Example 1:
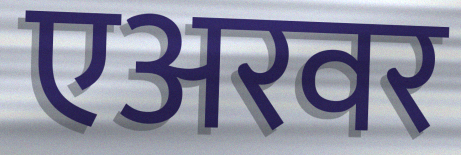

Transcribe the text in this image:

एअरवर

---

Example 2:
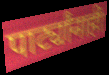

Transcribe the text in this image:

पार्ट्यांनाही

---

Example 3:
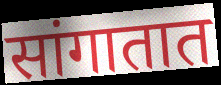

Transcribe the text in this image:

सांगातात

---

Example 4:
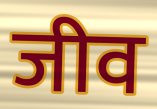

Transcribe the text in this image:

जीव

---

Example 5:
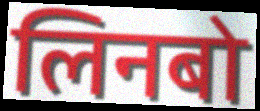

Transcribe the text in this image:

लिनबो